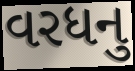
વરધનુ